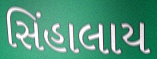
સિંહાલાય